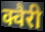
क्वैरी